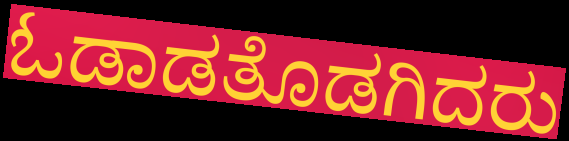
ಓಡಾಡತೊಡಗಿದರು